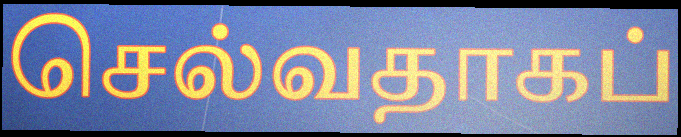
செல்வதாகப்